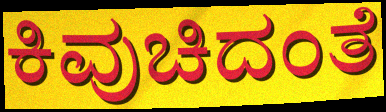
ಕಿವುಚಿದಂತೆ